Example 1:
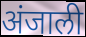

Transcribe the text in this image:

अंजाली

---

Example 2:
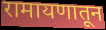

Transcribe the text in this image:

रामायणातून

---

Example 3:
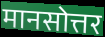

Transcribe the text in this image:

मानसोत्तर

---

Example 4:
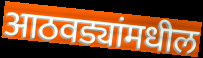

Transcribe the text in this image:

आठवड्यांमधील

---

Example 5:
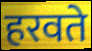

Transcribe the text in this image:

हरवते